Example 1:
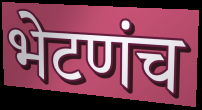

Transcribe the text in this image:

भेटणंच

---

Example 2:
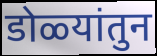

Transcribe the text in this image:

डोळ्यांतुन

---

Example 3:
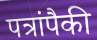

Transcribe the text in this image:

पत्रांपैकी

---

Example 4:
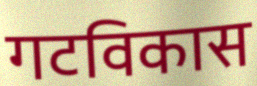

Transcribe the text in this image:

गटविकास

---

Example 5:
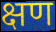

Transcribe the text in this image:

क्षण